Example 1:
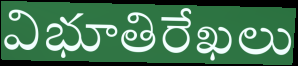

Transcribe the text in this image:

విభూతిరేఖలు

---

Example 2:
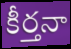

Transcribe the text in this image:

కీర్తనా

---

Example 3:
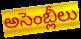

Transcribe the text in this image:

అసెంబ్లీలు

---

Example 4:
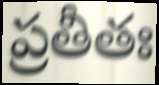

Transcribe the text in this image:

ప్రతీతః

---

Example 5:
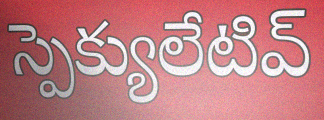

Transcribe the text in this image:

స్పెక్యులేటివ్